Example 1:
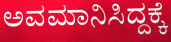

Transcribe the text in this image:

ಅವಮಾನಿಸಿದ್ದಕ್ಕೆ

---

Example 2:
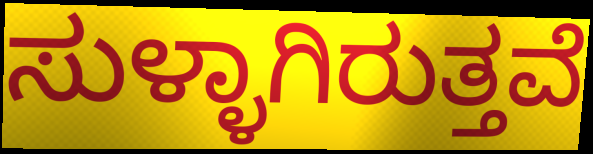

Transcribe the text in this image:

ಸುಳ್ಳಾಗಿರುತ್ತವೆ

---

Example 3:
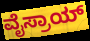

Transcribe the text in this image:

ವೈಸ್ರಾಯ್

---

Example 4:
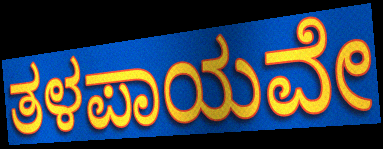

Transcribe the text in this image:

ತಳಪಾಯವೇ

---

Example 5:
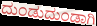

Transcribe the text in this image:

ದುಂಡುದುಂಡಾಗಿ